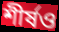
শীর্ষও